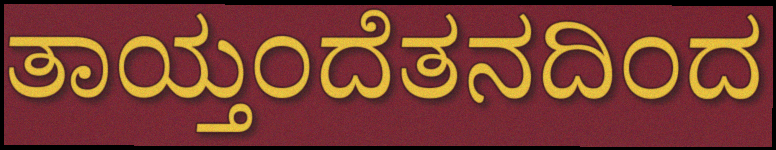
ತಾಯ್ತಂದೆತನದಿಂದ